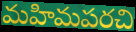
మహిమపరచి